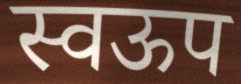
स्वऊप